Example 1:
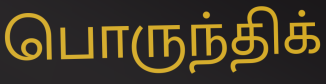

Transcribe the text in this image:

பொருந்திக்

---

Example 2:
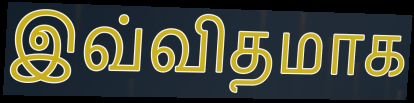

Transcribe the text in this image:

இவ்விதமாக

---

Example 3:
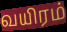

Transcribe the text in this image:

வயிரம்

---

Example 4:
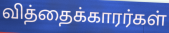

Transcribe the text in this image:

வித்தைக்காரர்கள்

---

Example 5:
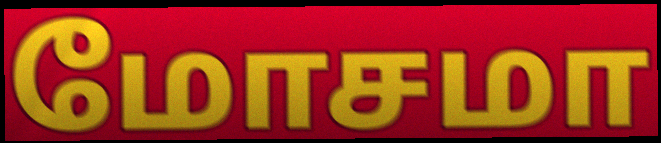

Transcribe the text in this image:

மோசமா